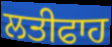
ਲਤੀਫਾਹ